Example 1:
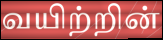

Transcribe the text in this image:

வயிற்றின்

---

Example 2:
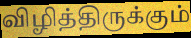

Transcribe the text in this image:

விழித்திருக்கும்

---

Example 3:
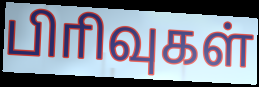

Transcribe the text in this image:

பிரிவுகள்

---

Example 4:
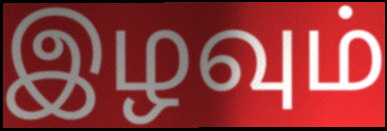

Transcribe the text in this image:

இழவும்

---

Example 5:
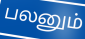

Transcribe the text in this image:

பலனும்